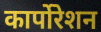
कार्पोरेशन